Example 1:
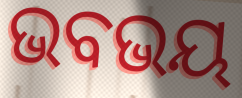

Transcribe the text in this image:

ଭବଭୟ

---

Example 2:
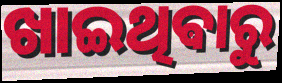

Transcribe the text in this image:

ଖାଇଥିଵାରୁ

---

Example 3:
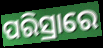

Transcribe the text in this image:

ପରିସ୍ରାରେ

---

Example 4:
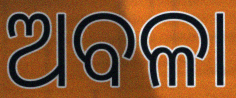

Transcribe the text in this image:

ଅବଳା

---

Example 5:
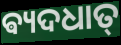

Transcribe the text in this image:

ଵ୍ୟଦଧାତ୍